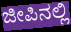
ಜೀಪಿನಲ್ಲಿ